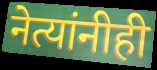
नेत्यांनीही